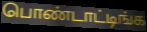
பொண்டாட்டிங்க